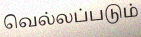
வெல்லப்படும்